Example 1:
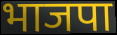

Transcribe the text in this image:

भाजपा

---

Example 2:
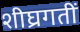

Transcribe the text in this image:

शीघ्रगतीं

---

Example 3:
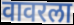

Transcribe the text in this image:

वावरला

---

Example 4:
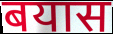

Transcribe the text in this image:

बयास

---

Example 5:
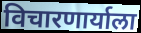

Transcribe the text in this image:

विचारणार्याला